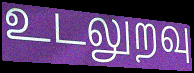
உடலுறவு